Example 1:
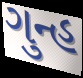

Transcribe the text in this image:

ગુન્હ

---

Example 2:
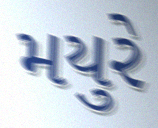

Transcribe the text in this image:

મયુરે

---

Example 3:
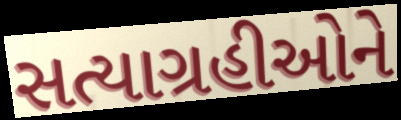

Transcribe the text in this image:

સત્યાગ્રહીઓને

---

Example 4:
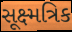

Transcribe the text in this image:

સૂક્ષ્મત્રિક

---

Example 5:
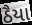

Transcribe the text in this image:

ઠૈયા